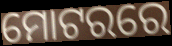
ମୋଟରରେ